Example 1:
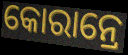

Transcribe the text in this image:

କୋରାନ୍ରେ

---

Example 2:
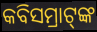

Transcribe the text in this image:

କବିସମ୍ରାଟ୍‌ଙ୍କ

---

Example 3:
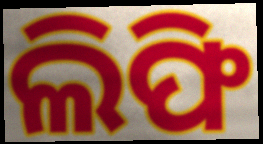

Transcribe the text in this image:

ଲିଫି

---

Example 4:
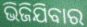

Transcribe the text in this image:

ଭିଜିଯିବାର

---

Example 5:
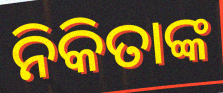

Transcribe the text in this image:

ନିକିତାଙ୍କ